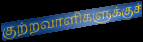
குற்றவாளிகளுக்குச்